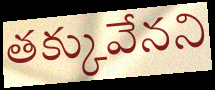
తక్కువేనని